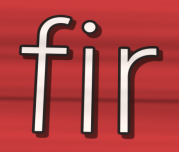
fir